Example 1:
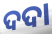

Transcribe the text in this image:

ଦଦା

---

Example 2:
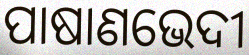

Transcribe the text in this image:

ପାଷାଣଭେଦୀ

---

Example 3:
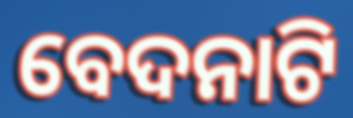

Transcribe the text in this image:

ବେଦନାଟି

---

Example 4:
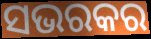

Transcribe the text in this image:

ସଭରକର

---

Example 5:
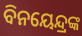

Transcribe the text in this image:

ବିନୟେନ୍ଦ୍ରଙ୍କ